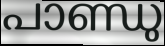
പാണ്ഡു